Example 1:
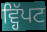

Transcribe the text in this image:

ਵ੍ਹਿੱਪਟ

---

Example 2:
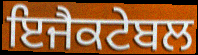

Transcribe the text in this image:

ਇਜੈਕਟੇਬਲ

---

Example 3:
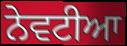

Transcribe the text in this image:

ਨੇਵਟੀਆ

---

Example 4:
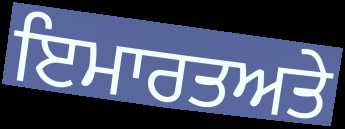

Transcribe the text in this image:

ਇਮਾਰਤਅਤੇ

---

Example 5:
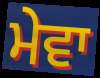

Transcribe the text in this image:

ਮੇਵਾ